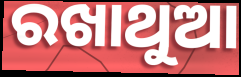
ରଖାଥୁଆ